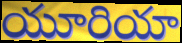
యూరియా